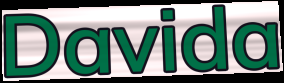
Davida